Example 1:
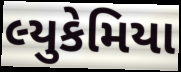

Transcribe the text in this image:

લ્યુકેમિયા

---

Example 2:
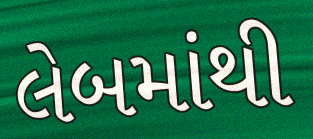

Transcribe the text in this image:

લેબમાંથી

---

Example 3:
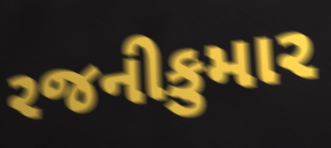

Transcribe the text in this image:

રજનીકુમાર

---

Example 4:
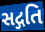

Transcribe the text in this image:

સદ્ગતિ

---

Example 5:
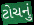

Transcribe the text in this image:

ટોચનું